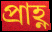
প্ৰাহ্ণ